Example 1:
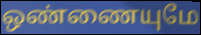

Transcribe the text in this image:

ஒண்ணையுமே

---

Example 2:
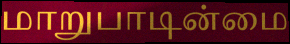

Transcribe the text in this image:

மாறுபாடின்மை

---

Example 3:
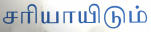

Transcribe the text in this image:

சரியாயிடும்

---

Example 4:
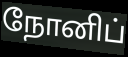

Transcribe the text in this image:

நோனிப்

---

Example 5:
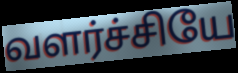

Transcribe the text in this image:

வளர்ச்சியே